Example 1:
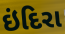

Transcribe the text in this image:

ઇંદિરા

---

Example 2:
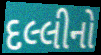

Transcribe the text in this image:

દલ્લીનો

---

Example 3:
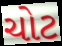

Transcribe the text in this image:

ચોટ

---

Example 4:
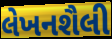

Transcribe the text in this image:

લેખનશૈલી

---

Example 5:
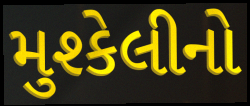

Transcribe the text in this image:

મુશ્કેલીનો